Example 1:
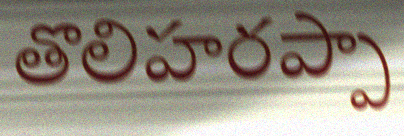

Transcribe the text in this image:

తొలిహరప్పా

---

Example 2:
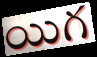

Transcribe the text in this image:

యిగ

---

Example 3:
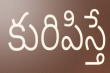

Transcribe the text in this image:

కురిపిస్తే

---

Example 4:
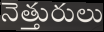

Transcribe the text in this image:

నెత్తురులు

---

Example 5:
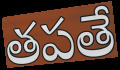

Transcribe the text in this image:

తపతే